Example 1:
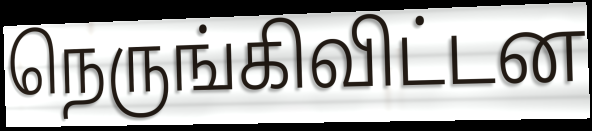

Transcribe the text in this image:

நெருங்கிவிட்டன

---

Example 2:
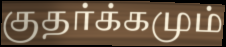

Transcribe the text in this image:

குதர்க்கமும்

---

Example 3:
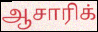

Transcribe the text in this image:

ஆசாரிக்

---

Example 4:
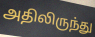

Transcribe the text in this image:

அதிலிருந்து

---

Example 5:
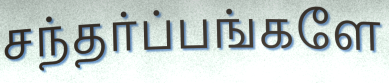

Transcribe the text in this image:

சந்தர்ப்பங்களே